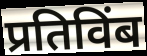
प्रतिविंब